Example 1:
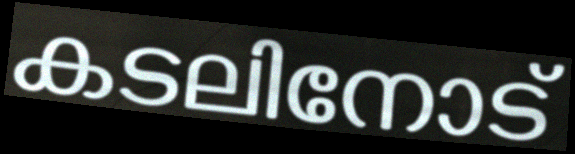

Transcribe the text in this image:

കടലിനോട്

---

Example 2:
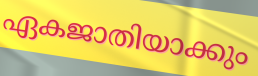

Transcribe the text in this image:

ഏകജാതിയാക്കും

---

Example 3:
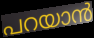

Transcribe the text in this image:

പറയാൻ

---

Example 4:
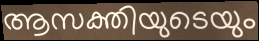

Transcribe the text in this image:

ആസക്തിയുടെയും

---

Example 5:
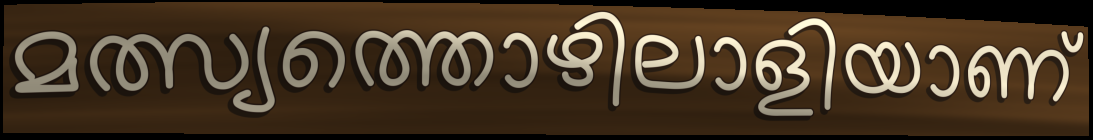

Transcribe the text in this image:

മത്സ്യത്തൊഴിലാളിയാണ്